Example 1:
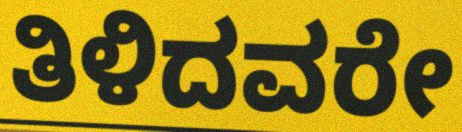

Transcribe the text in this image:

ತಿಳಿದವರೇ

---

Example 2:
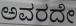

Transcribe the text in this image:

ಅವರದೇ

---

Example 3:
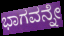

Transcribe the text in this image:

ಭಾಗವನ್ನೇ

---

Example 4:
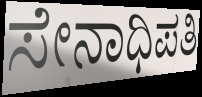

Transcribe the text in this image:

ಸೇನಾಧಿಪತಿ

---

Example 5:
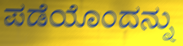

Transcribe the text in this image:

ಪಡೆಯೊಂದನ್ನು